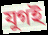
যুগই